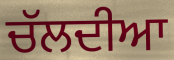
ਚੱਲਦੀਆ